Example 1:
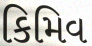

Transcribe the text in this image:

કિમિવ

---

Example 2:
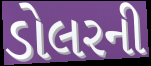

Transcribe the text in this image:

ડોલરની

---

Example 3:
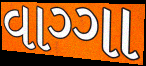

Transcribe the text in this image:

વાગ્ગા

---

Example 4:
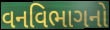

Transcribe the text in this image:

વનવિભાગનો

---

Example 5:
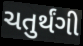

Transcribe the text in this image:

ચતુર્થંગી